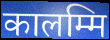
कालम्मि